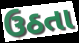
ઉઠતા